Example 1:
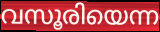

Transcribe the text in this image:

വസൂരിയെന്ന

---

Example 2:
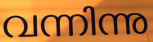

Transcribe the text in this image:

വന്നിന്നു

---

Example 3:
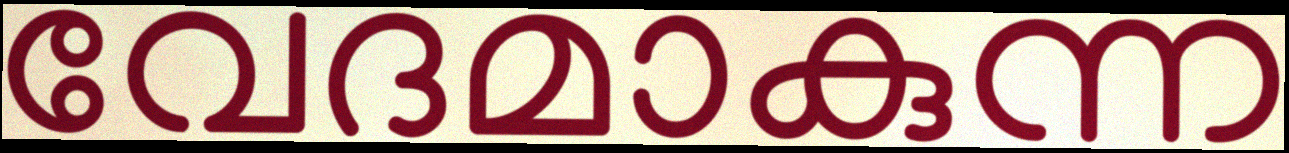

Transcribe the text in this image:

വേദമാകുന്ന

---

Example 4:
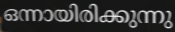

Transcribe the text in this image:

ഒന്നായിരിക്കുന്നു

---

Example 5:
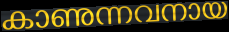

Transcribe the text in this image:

കാണുന്നവനായ